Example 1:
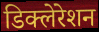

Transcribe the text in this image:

डिक्लेरेशन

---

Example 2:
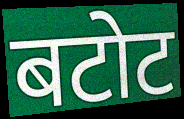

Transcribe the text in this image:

बटोट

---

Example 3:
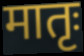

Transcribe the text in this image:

मातृः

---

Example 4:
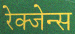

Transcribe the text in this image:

रेक्जेन्स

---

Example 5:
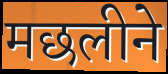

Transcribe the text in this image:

मछलीने